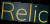
Relic